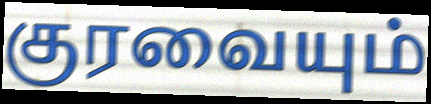
குரவையும்